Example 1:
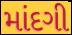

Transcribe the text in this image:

માંદગી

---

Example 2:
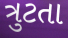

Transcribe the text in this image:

ત્રુટતા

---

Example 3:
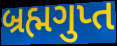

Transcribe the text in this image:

બ્રહ્મગુપ્ત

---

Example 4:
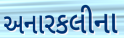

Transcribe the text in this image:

અનારકલીના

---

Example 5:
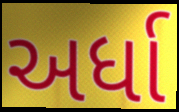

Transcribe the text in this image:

અર્ધા